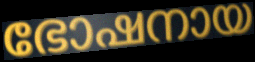
ഭോഷനായ